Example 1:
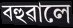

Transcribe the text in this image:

বহুৱালে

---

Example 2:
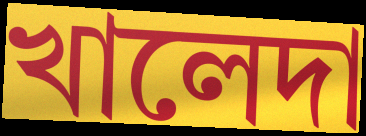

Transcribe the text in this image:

খালেদা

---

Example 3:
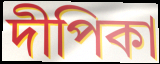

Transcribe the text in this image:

দীপিকা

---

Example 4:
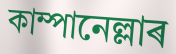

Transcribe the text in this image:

কাম্পানেল্লাৰ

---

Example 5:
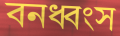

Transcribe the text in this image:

বনধ্বংস